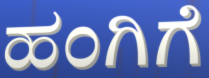
ಹಂಗಿಗೆ